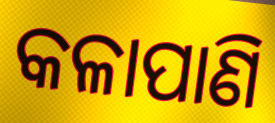
କଳାପାଣି